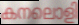
കനലൊളി